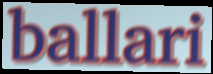
ballari